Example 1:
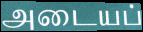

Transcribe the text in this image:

அடையப்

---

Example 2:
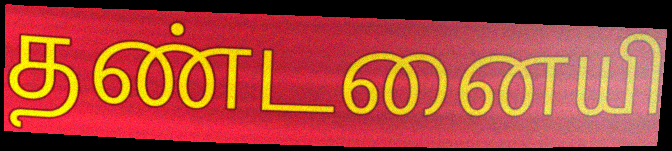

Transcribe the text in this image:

தண்டனையி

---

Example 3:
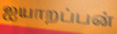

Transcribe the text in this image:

ஐயாறப்பன்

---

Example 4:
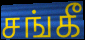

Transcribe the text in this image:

சங்கீ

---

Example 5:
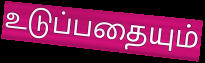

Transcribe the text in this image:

உடுப்பதையும்